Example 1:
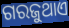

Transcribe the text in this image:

ଗରଜୁଥାଏ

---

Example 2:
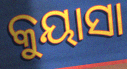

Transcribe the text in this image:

କୁୟାସା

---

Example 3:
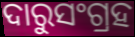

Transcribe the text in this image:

ଦାରୁସଂଗ୍ରହ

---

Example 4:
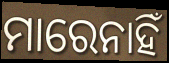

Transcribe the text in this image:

ମାରେନାହିଁ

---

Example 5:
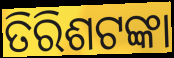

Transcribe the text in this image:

ତିରିଶଟଙ୍କା